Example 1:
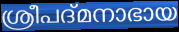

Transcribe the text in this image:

ശ്രീപദ്മനാഭായ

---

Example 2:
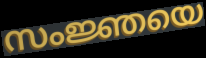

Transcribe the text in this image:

സംജ്ഞയെ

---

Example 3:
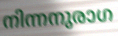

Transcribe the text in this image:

നിന്നനുരാഗ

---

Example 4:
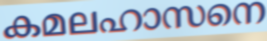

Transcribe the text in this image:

കമലഹാസനെ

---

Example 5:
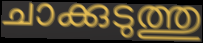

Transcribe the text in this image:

ചാക്കുടുത്തു